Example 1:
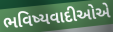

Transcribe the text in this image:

ભવિષ્યવાદીઓએ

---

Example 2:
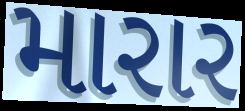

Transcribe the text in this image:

મારાર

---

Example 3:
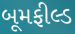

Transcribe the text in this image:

બૂમફીલ્ડ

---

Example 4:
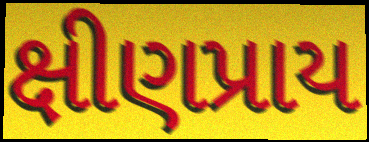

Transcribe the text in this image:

ક્ષીણપ્રાય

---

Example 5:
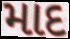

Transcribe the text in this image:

માદ